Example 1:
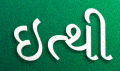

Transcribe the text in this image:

ઇત્થી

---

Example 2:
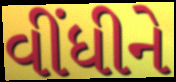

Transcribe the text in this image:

વીંધીને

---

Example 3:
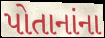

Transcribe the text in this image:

પોતાનાંના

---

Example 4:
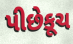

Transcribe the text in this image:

પીછેકૂચ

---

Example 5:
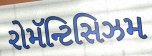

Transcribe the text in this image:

રોમૅન્ટિસિઝમ